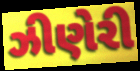
ઝીણેરી